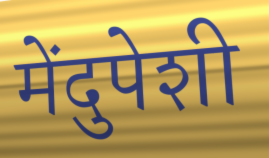
मेंदुपेशी